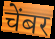
चेंबर